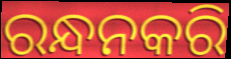
ରନ୍ଧନକରି